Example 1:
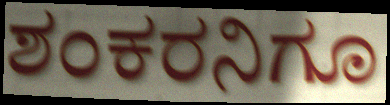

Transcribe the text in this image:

ಶಂಕರನಿಗೂ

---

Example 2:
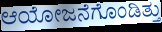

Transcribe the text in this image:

ಆಯೋಜನೆಗೊಂಡಿತ್ತು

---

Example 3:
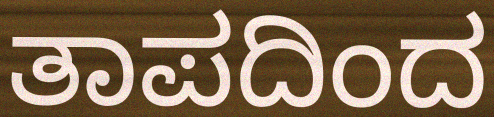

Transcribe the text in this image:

ತಾಪದಿಂದ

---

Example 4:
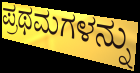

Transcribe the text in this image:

ಪ್ರಥಮಗಳನ್ನು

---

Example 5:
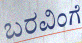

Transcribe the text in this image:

ಬರವಿಂಗೆ